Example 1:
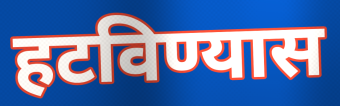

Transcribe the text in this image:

हटविण्यास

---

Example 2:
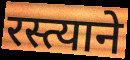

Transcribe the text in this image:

रस्त्याने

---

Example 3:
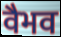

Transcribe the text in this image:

वैभव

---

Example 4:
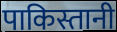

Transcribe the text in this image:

पाकिस्तानी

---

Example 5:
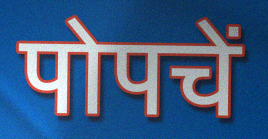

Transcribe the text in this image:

पोपचें